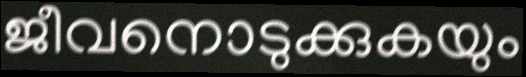
ജീവനൊടുക്കുകയും